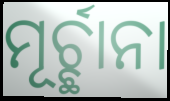
ମୂର୍ଚ୍ଛାନା